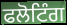
ਫਲੋਟਿੰਗ